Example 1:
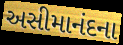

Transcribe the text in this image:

અસીમાનંદના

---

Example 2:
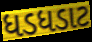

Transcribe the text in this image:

ધડધડાટ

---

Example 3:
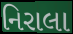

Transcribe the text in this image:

નિરાલા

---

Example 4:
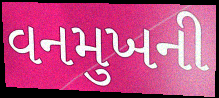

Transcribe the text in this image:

વનમુખની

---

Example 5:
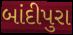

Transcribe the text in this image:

બાંદીપુરા